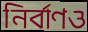
নির্বাণও